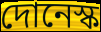
দোনেস্ক